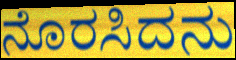
ನೊರಸಿದನು